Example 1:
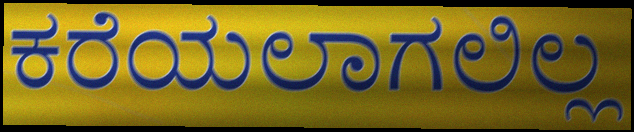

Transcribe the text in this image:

ಕರೆಯಲಾಗಲಿಲ್ಲ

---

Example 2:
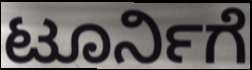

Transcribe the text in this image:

ಟೂರ್ನಿಗೆ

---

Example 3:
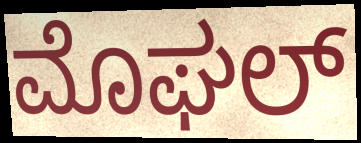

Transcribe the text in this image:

ಮೊಘಲ್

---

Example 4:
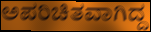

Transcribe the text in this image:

ಅಪರಿಚಿತವಾಗಿದ್ದ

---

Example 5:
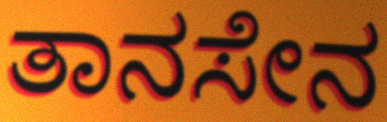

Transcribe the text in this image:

ತಾನಸೇನ